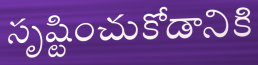
సృష్టించుకోడానికి